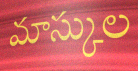
మాస్కుల